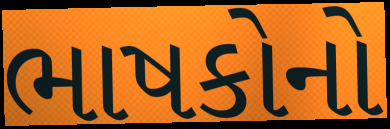
ભાષકોનો